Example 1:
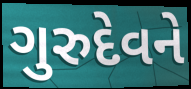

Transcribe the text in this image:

ગુરુદેવને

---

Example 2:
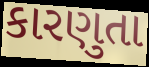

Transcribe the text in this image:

કારણુતા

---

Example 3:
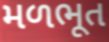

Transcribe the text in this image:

મળભૂત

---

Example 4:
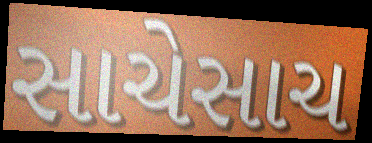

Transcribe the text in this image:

સાચેસાચ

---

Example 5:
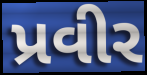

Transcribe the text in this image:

પ્રવીર